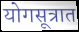
योगसूत्रात